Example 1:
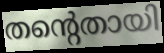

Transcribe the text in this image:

തന്റെതായി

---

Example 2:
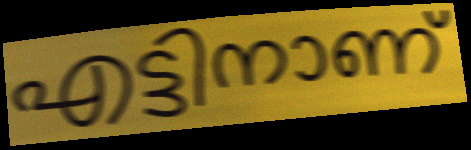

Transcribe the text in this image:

എട്ടിനാണ്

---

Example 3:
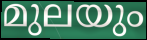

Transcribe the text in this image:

മുലയും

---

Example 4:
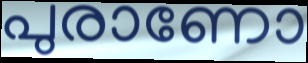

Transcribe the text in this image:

പുരാണോ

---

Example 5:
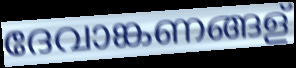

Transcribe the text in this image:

ദേവാങ്കണങ്ങള്